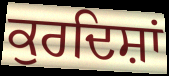
ਕੁਰਦਿਸ਼ਾਂ